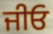
ਜੀਓ